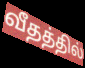
வீதத்தில்